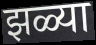
झळ्या